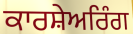
ਕਾਰਸ਼ੇਅਰਿੰਗ